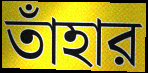
তাঁহার